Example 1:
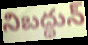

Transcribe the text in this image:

నిబద్ధున్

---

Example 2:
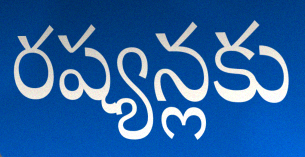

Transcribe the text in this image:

రష్యన్లకు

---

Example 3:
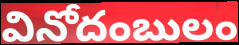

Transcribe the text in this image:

వినోదంబులం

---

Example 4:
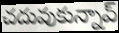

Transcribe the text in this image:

చదువుకున్నావ్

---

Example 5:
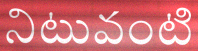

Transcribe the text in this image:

నిటువంటి